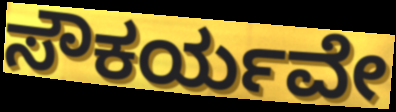
ಸೌಕರ್ಯವೇ